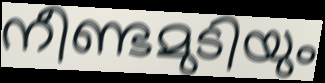
നീണ്ടമുടിയും